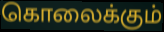
கொலைக்கும்